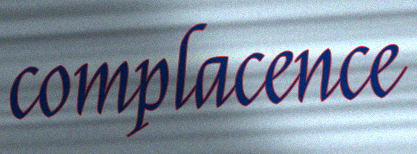
complacence